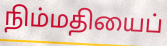
நிம்மதியைப்